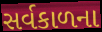
સર્વકાળના